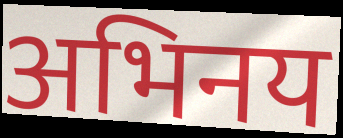
अभिनय